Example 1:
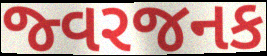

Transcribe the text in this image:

જ્વરજનક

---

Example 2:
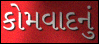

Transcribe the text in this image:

કોમવાદનું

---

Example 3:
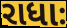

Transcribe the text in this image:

રાધાઃ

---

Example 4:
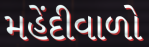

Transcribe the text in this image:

મહેંદીવાળો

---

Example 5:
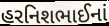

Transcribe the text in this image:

હરનિશભાઈનાં